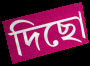
দিছো